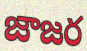
జాజర